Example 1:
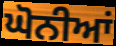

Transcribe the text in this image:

ਘੋਨੀਆਂ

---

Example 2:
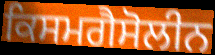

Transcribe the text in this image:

ਕਿਸਮਗੈਸੋਲੀਨ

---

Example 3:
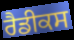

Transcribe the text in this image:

ਰੈਡੀਕਸ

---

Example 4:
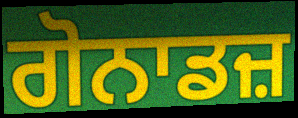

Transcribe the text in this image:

ਗੋਨਾਡਜ਼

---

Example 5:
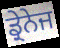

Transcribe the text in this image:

ਡ੍ਰੇਨੇਜ